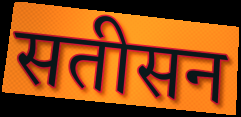
सतीसन